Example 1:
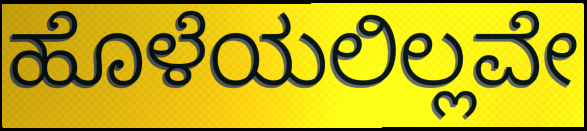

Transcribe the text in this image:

ಹೊಳೆಯಲಿಲ್ಲವೇ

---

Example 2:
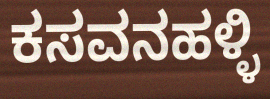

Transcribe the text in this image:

ಕಸವನಹಳ್ಳಿ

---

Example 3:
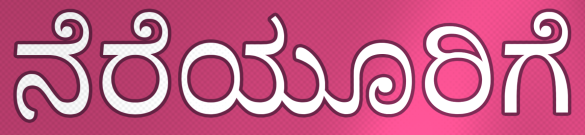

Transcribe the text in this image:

ನೆರೆಯೂರಿಗೆ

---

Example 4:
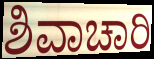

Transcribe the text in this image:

ಶಿವಾಚಾರಿ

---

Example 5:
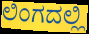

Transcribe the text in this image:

ಲಿಂಗದಲ್ಲಿ